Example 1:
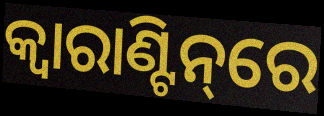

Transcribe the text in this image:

କ୍ବାରାଣ୍ଟିନ୍‌ରେ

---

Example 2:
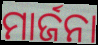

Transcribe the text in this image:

ମାର୍ଜନା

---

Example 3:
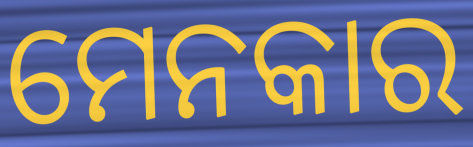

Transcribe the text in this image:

ମେନକାର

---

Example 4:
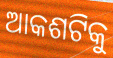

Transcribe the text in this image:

ଆକଶଟିକୁ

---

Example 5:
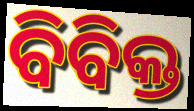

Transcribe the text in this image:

ବିବିକ୍ତ